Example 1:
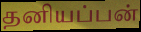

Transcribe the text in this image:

தனியப்பன்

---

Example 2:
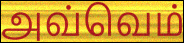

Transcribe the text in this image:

அவ்வெம்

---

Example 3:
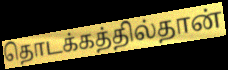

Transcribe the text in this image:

தொடக்கத்தில்தான்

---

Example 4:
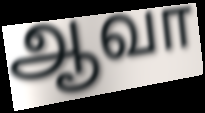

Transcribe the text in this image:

ஆவா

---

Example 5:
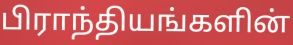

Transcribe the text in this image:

பிராந்தியங்களின்